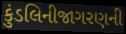
કુંડલિનીજાગરણની